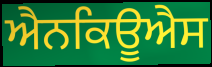
ਐਨਕਿਊਐਸ